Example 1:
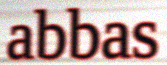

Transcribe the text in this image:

abbas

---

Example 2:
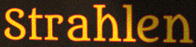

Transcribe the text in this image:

Strahlen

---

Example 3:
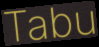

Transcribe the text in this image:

Tabu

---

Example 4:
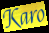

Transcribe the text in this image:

Karo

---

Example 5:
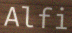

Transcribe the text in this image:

Alfi